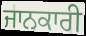
ਜਾਨਕਾਰੀ